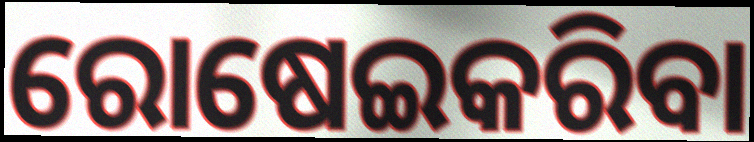
ରୋଷେଇକରିବା